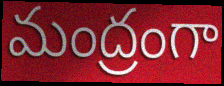
మంద్రంగా